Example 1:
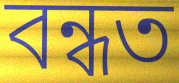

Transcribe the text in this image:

বন্ধত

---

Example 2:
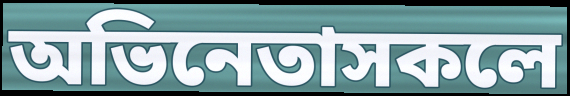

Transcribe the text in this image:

অভিনেতাসকলে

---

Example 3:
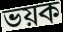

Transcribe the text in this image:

ভয়ক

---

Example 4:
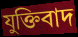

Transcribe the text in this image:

যুক্তিবাদ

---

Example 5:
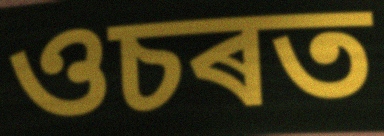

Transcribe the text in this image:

ওচৰত